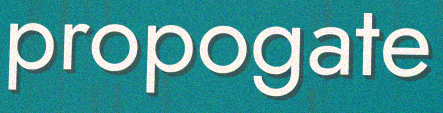
propogate